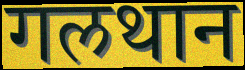
गलथान